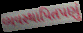
વ્યવસ્થાપિતપણું